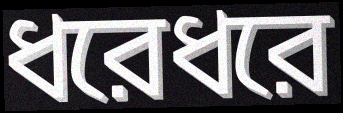
ধরেধরে